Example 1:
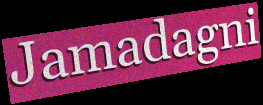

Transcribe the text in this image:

Jamadagni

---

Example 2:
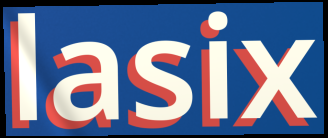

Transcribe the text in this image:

lasix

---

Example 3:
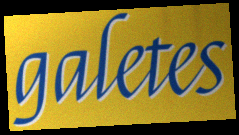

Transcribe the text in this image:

galetes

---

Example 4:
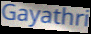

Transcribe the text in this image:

Gayathri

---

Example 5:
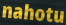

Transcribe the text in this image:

nahotu